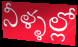
నీళ్ళల్లో